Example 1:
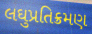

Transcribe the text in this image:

લઘુપ્રતિક્રમણ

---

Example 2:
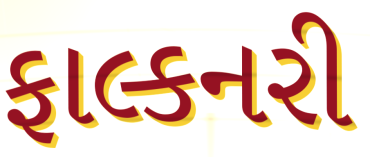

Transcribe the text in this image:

ફાલ્કનરી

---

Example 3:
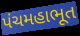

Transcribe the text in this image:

પંચમહાભૂત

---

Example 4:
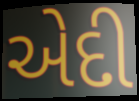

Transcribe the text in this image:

એદી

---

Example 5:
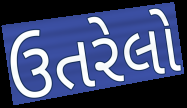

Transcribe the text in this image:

ઉતરેલો